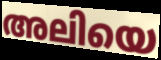
അലിയെ